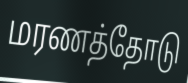
மரணத்தோடு